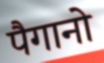
पैगानो